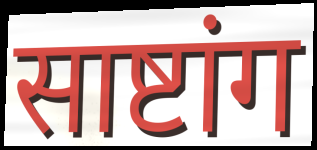
साष्टांग